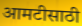
आमटीसाठी